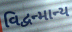
વિદ્વન્માન્ય